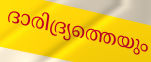
ദാരിദ്ര്യത്തെയും